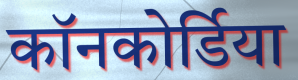
कॉनकोर्डिया